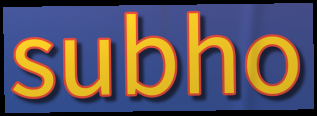
subho